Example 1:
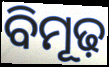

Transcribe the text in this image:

ବିମୂଢ଼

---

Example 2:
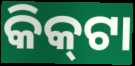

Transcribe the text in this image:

କିକ୍‍ଟା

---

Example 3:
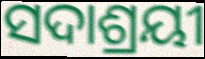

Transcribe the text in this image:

ସଦାଶ୍ରୟୀ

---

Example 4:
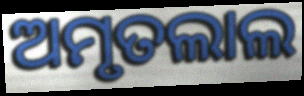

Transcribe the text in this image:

ଅମୃତଲାଲ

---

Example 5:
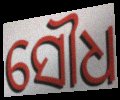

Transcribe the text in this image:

ସୌଧ